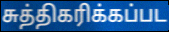
சுத்திகரிக்கப்பட